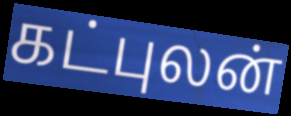
கட்புலன்